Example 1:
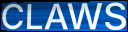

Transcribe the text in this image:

CLAWS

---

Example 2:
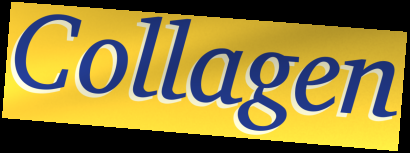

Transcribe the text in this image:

Collagen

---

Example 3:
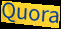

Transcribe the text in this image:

Quora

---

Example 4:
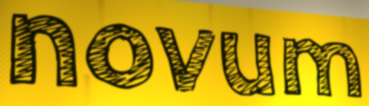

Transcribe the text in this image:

novum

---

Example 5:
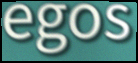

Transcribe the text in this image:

egos